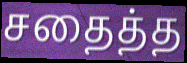
சதைத்த